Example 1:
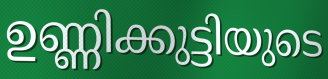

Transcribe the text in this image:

ഉണ്ണിക്കുട്ടിയുടെ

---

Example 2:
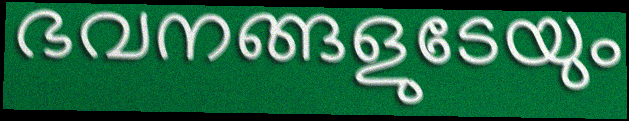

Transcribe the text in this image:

ഭവനങ്ങളുടേയും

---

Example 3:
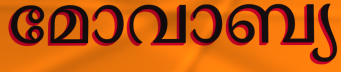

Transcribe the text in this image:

മോവാബ്യ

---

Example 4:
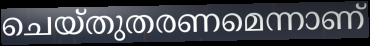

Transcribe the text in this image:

ചെയ്തുതരണമെന്നാണ്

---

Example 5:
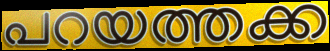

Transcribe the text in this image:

പറയത്തക്ക